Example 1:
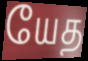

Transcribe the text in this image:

யேத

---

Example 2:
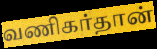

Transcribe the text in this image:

வணிகர்தான்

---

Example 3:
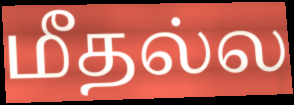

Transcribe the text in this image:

மீதல்ல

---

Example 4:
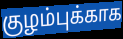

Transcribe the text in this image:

குழம்புக்காக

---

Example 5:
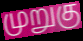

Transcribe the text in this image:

முறுகு